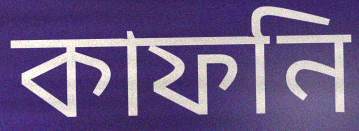
কাফনি